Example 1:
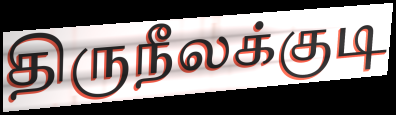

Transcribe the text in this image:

திருநீலக்குடி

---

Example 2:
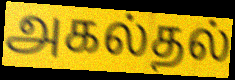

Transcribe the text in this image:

அகல்தல்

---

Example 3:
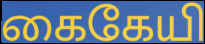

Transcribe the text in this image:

கைகேயி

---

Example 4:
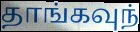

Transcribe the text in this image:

தாங்கவுந்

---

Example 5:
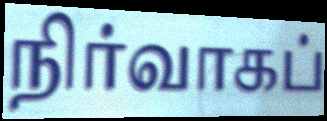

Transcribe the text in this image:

நிர்வாகப்